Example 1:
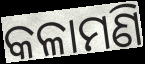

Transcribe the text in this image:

କଳାମଣି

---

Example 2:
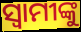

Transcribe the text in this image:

ସ୍ୱାମୀଙ୍କୁ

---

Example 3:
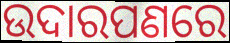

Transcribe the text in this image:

ଉଦାରପଣରେ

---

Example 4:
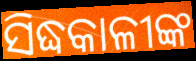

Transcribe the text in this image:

ସିଦ୍ଧକାଳୀଙ୍କ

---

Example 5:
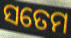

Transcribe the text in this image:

ସତେମ